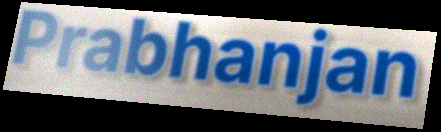
Prabhanjan